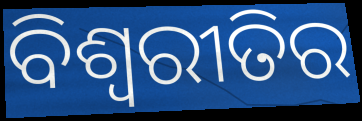
ବିଶ୍ଵରୀତିର